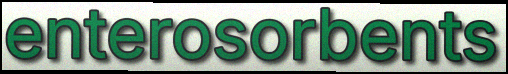
enterosorbents